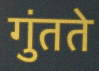
गुंतते